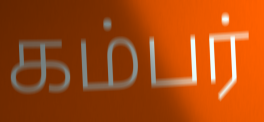
கம்பர்